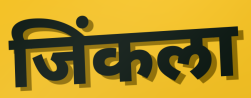
जिंकला